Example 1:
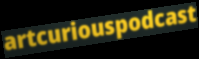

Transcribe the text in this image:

artcuriouspodcast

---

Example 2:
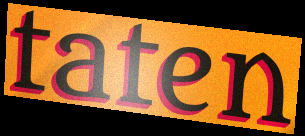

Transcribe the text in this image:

taten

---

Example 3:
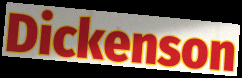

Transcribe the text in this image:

Dickenson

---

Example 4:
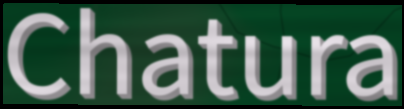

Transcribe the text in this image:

Chatura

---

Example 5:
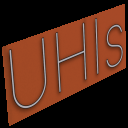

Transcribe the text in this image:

UHIs